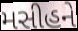
મસીહને